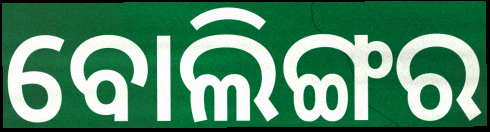
ବୋଲିଙ୍ଗର